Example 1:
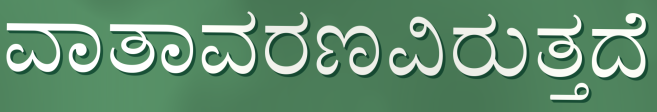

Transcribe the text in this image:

ವಾತಾವರಣವಿರುತ್ತದೆ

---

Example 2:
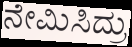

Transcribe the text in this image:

ನೇಮಿಸಿದ್ರು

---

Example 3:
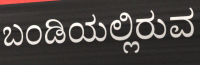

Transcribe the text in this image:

ಬಂಡಿಯಲ್ಲಿರುವ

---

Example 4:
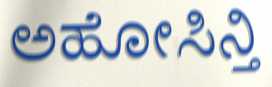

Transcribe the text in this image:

ಅಹೋಸಿನ್ತಿ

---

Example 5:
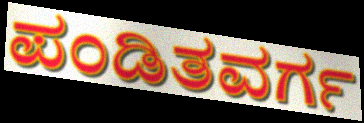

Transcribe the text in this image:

ಪಂಡಿತವರ್ಗ